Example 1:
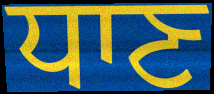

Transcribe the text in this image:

ਧਾਣ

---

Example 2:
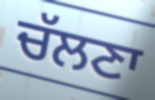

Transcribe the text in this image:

ਚੱਲਣਾ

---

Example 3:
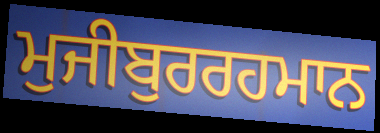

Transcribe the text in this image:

ਮੁਜੀਬੁਰਰਹਮਾਨ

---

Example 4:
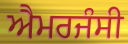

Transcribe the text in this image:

ਐਮਰਜੰਸੀ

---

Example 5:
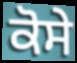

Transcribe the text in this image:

ਕੋਸੇ